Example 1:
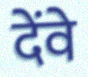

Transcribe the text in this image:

देंवे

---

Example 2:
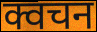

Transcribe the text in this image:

क्वचन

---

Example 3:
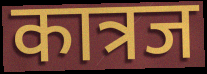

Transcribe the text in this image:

कात्रज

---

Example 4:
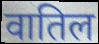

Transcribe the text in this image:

वातिल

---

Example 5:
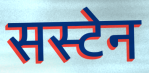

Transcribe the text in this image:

सस्टेन